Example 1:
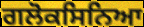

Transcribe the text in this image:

ਗਲੋਕਸਿਨਿਆ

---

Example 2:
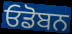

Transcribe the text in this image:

ਓਡੋਬਨ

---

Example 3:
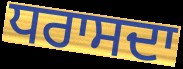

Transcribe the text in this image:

ਧਰਾਸਦਾ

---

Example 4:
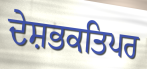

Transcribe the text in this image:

ਦੇਸ਼ਭਕਤਿਪਰ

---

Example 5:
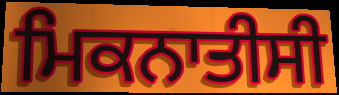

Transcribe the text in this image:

ਮਿਕਨਾਤੀਸੀ